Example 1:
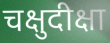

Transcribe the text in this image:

चक्षुदीक्षा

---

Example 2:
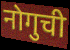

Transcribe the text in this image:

नोगुची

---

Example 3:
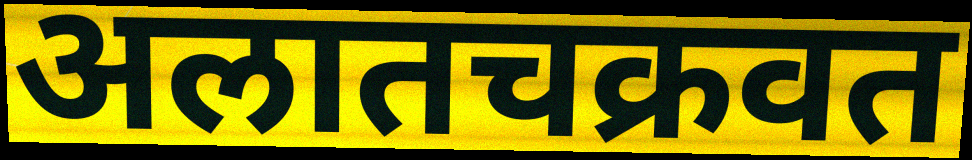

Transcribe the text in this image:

अलातचक्रवत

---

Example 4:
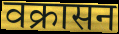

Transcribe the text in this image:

वक्रासन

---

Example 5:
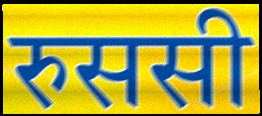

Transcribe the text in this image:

रुससी